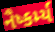
નૈષ્કર્મ્ય